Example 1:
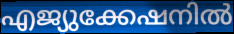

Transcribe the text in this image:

എജ്യുക്കേഷനിൽ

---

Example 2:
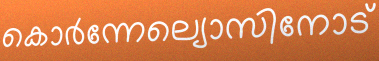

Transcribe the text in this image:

കൊർന്നേല്യൊസിനോട്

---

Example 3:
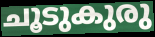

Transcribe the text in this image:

ചൂടുകുരു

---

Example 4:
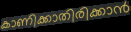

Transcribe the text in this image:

കാണിക്കാതിരിക്കാൻ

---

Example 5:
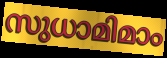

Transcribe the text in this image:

സുധാമിമാം